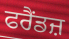
ਫਰੈਂਡਜ਼